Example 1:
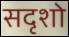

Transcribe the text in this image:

सदृशो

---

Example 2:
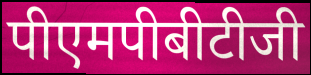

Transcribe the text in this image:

पीएमपीबीटीजी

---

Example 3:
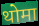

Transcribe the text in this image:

थोमा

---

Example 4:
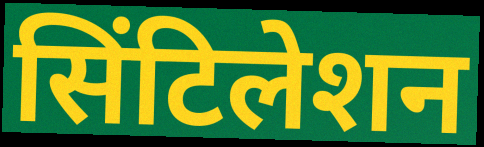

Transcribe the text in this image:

सिंटिलेशन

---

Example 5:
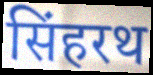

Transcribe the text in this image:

सिंहरथ